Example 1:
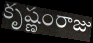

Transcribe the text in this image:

కృష్ణంరాజు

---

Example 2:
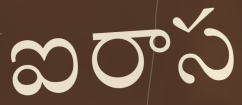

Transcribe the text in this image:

ఐరాస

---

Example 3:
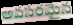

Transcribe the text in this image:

అవసరమైన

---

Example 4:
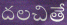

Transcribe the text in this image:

దలచితే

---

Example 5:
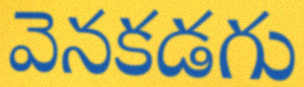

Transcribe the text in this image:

వెనకడగు